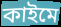
কাইমে